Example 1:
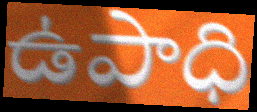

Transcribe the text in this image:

ఉపాధి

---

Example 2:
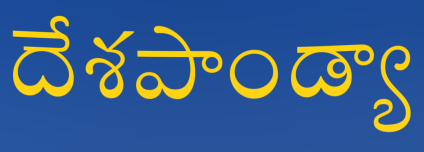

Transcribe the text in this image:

దేశపాండ్యా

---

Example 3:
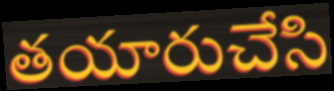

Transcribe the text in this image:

తయారుచేసి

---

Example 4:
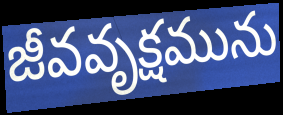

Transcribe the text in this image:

జీవవృక్షమును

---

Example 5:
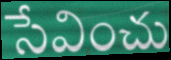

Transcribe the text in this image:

సేవించు